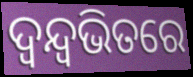
ଦ୍ୱନ୍ଦ୍ୱଭିତରେ